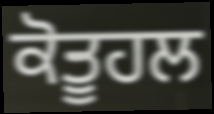
ਕੋਤੂਹਲ